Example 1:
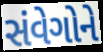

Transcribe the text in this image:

સંવેગોને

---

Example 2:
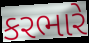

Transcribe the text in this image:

કરભારે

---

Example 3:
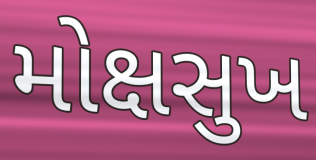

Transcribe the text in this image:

મોક્ષસુખ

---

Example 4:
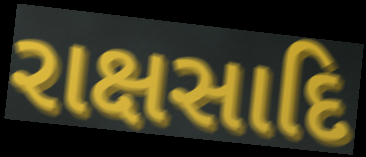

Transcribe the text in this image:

રાક્ષસાદિ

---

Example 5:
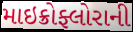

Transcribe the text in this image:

માઇક્રોફ્લોરાની